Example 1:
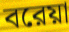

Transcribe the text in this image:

বরেয়া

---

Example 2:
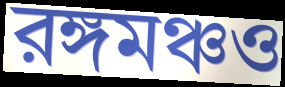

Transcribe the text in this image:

রঙ্গমঞ্চও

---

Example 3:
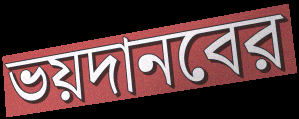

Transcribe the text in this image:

ভয়দানবের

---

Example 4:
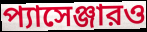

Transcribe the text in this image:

প্যাসেঞ্জারও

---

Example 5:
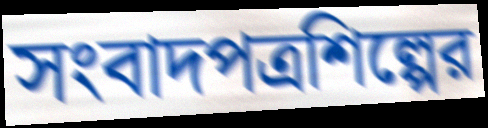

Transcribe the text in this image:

সংবাদপত্রশিল্পের